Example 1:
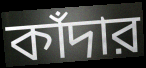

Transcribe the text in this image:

কাঁদার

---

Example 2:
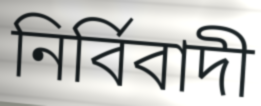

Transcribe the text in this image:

নির্বিবাদী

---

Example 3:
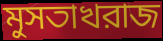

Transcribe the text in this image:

মুসতাখরাজ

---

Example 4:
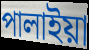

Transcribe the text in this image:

পালাইয়া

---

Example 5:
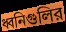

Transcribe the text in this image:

ধ্বনিগুলির